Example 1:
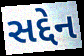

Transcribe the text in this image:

સદ્દેન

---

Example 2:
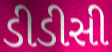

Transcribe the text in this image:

ડીડીસી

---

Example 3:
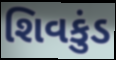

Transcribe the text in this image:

શિવકુંડ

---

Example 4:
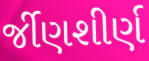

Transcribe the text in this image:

ર્જીણશીર્ણ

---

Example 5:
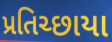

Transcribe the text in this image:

પ્રતિચ્છાયા